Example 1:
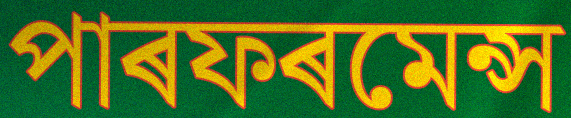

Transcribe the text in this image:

পাৰফৰমেন্স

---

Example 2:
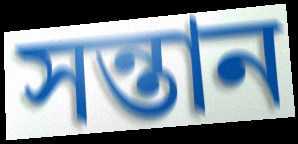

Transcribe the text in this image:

সন্তান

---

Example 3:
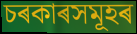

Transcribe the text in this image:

চৰকাৰসমূহৰ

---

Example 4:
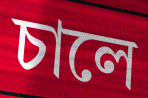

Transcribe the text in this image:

চালে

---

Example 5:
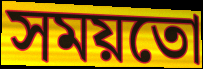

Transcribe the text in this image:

সময়তো